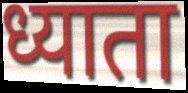
ध्याता